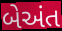
બેઅંત